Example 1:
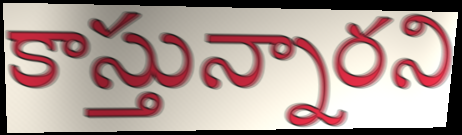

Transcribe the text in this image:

కాస్తున్నారని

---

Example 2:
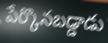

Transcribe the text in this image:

పేర్కొనబడ్డాడు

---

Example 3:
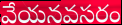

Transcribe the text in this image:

వేయనవసరం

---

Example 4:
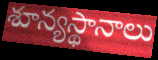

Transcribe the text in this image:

శూన్యస్థానాలు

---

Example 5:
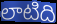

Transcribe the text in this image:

లాటిది